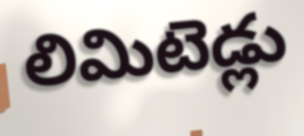
లిమిటెడ్లు